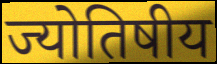
ज्योतिषीय